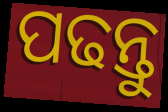
ପଢନ୍ତୁ